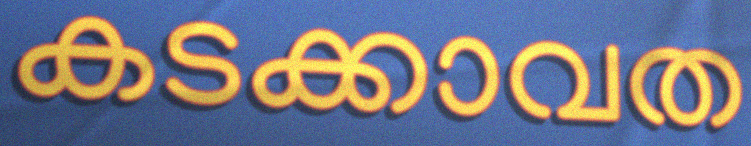
കടക്കാവത